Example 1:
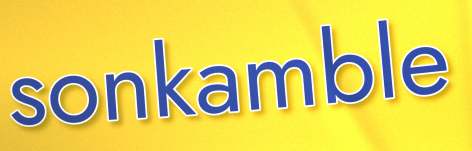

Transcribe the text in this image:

sonkamble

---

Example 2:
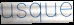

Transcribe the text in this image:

usque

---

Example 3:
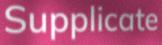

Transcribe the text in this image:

Supplicate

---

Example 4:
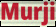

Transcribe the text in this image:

Murji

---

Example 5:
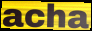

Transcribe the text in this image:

acha